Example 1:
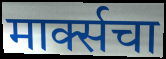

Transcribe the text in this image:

मार्क्सचा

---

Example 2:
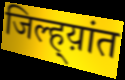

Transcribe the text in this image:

जिल्ह्य़ांत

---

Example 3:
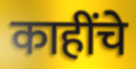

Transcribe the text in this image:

काहींचे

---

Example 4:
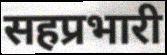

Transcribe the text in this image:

सहप्रभारी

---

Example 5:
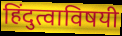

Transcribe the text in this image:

हिंदुत्वाविषयी